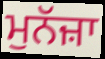
ਮੁਨੱਜ਼ਾ